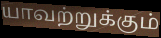
யாவற்றுக்கும்